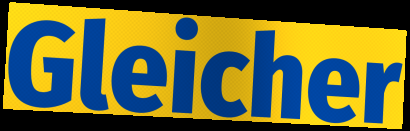
Gleicher